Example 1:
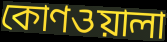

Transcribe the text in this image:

কোণওয়ালা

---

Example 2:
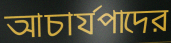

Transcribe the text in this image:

আচার্যপাদের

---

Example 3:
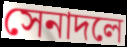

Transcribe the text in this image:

সেনাদলে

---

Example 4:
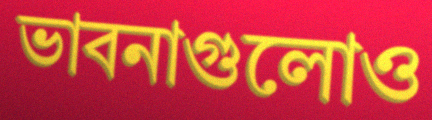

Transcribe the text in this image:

ভাবনাগুলোও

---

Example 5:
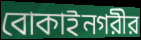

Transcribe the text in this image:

বোকাইনগরীর